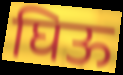
घिऊ